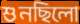
শুনছিলো